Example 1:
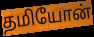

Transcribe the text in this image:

தமியோன்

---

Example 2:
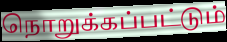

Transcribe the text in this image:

நொறுக்கப்பட்டும்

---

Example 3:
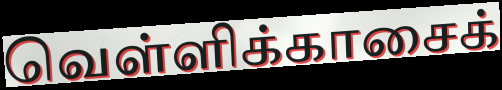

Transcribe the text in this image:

வெள்ளிக்காசைக்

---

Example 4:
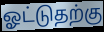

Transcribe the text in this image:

ஓட்டுதற்கு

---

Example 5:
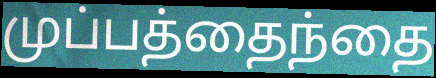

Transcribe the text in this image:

முப்பத்தைந்தை